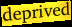
deprived